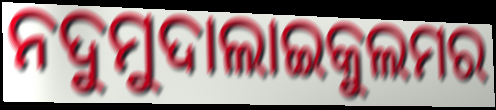
ନଦୁମୁଦାଲାଇକୁଲମର